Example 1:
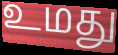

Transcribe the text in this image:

உமது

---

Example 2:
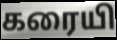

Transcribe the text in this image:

கரையி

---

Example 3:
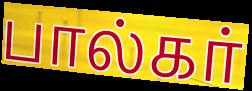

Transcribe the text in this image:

பால்கர்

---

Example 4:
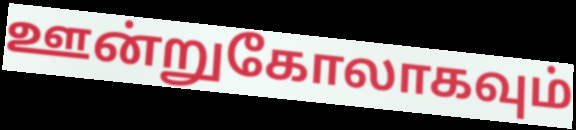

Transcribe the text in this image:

ஊன்றுகோலாகவும்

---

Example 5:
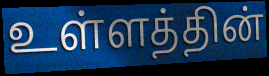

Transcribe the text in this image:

உள்ளத்தின்